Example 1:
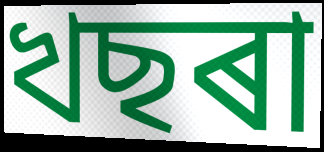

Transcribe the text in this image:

খছৰা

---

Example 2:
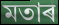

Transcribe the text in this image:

মতাৰ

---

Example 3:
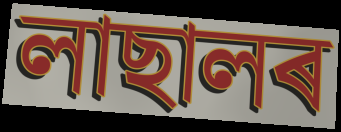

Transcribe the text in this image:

লাছালৰ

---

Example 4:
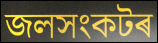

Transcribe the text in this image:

জলসংকটৰ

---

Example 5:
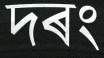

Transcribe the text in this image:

দৰং